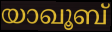
യാഖൂബ്